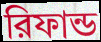
রিফান্ড